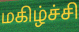
மகிழ்ச்சி